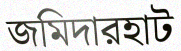
জমিদারহাট